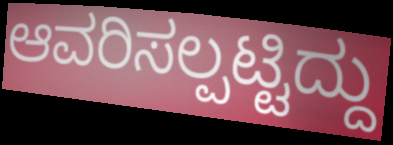
ಆವರಿಸಲ್ಪಟ್ಟಿದ್ದು